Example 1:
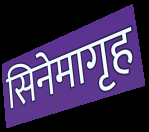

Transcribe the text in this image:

सिनेमागृह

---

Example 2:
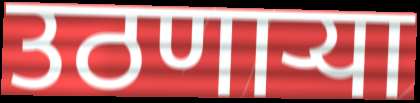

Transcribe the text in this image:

उठणाऱ्या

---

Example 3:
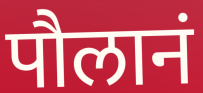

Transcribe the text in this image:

पौलानं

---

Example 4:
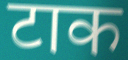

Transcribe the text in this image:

टाक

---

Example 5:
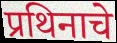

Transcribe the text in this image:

प्रथिनाचे